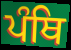
ਪੰਥਿ